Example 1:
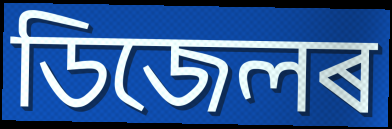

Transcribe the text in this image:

ডিজেলৰ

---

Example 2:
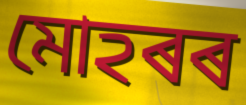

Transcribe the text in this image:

মোহৰৰ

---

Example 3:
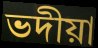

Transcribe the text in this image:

ভদীয়া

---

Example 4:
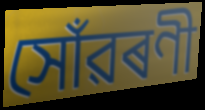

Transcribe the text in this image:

সোঁৱৰণী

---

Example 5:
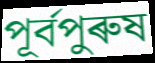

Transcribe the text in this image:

পূৰ্বপুৰুষ